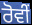
ਰੋਵੀਂ